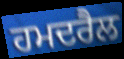
ਹਮਦਰੈਲ